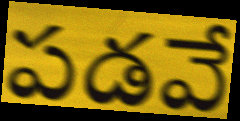
పడవే